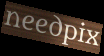
needpix